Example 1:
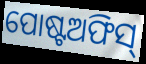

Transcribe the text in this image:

ପୋଷ୍ଟଅଫିସ୍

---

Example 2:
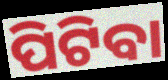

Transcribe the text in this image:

ପିଟିବା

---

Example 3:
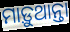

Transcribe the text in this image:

ମାଡ଼ୁଥାନ୍ତା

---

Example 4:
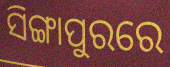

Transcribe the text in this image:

ସିଙ୍ଗାପୁରରେ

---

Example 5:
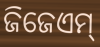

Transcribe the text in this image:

ଜିଜେଏମ୍